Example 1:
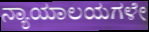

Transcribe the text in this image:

ನ್ಯಾಯಾಲಯಗಳೇ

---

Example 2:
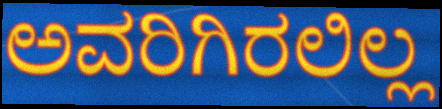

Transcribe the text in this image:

ಅವರಿಗಿರಲಿಲ್ಲ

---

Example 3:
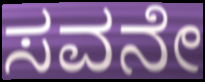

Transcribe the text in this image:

ಸವನೇ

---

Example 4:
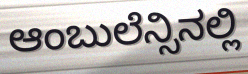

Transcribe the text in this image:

ಆಂಬುಲೆನ್ಸಿನಲ್ಲಿ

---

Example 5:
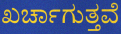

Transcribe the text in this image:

ಖರ್ಚಾಗುತ್ತವೆ